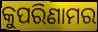
କୁପରିଣାମର